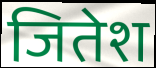
जितेश